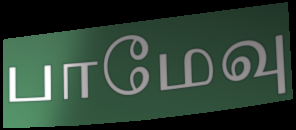
பாமேவு